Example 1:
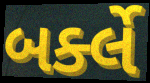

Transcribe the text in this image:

બર્ક્લે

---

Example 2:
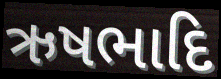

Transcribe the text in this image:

ઋષભાદિ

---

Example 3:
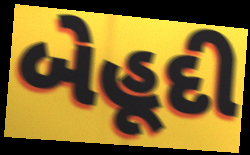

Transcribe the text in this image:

બેહૂદી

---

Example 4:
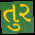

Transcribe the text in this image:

તુર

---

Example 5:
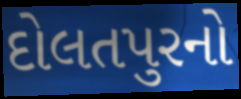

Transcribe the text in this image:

દોલતપુરનો